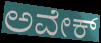
ಅವೇಕ್